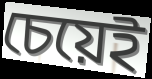
চেয়েই